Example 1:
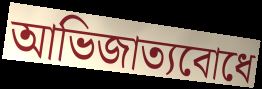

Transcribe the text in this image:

আভিজাত্যবোধে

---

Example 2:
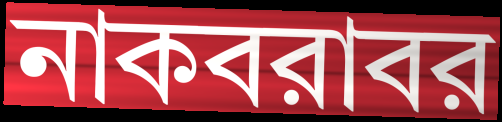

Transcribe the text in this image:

নাকবরাবর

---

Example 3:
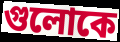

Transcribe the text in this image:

গুলোকে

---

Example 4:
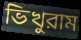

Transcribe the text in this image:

ভিখুরাম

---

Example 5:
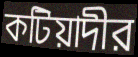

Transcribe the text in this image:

কটিয়াদীর